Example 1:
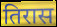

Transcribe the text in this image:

तिरास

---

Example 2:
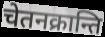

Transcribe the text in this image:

चेतनक्रान्ति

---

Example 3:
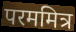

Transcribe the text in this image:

परममित्र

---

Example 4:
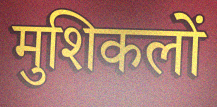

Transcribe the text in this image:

मुशिकलों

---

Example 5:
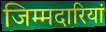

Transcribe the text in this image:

जिम्मदारियां